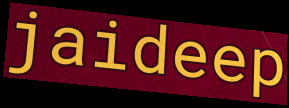
jaideep